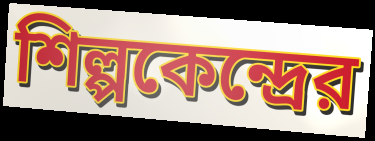
শিল্পকেন্দ্রের